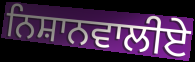
ਨਿਸ਼ਾਨਵਾਲੀਏ